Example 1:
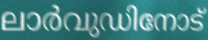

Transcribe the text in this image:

ലാർവുഡിനോട്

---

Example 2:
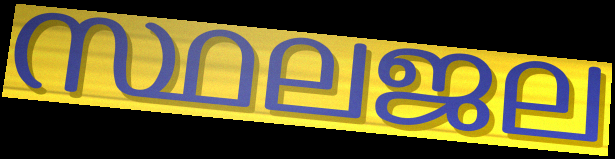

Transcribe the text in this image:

സ്ഥലജല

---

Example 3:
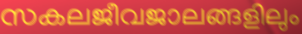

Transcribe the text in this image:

സകലജീവജാലങ്ങളിലും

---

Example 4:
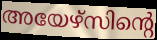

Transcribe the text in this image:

അയേഴ്സിന്റെ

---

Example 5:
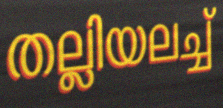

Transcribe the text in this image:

തല്ലിയലച്ച്